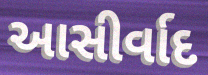
આસીર્વાદ